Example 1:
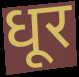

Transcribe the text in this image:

धूर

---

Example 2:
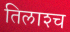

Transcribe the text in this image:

तिलाश्च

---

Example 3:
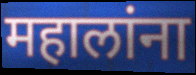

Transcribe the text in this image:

महालांना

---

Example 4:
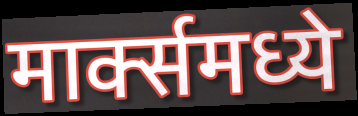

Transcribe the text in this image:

मार्क्समध्ये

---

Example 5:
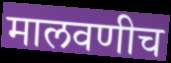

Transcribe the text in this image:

मालवणीच